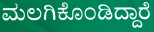
ಮಲಗಿಕೊಂಡಿದ್ದಾರೆ